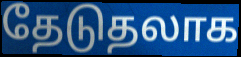
தேடுதலாக